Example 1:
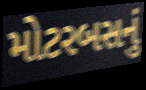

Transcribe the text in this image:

મોટરબસનું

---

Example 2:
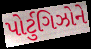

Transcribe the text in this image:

પોર્ટુગિઝોને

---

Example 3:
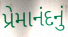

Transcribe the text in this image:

પ્રેમાનંદનું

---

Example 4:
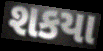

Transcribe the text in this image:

શકયા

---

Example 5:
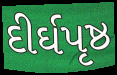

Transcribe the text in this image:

દીર્ઘપૃષ્ઠ